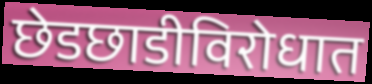
छेडछाडीविरोधात